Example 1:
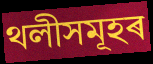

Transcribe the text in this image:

থলীসমূহৰ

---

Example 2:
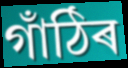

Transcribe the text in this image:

গাঁঠিৰ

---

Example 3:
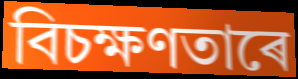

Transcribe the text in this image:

বিচক্ষণতাৰে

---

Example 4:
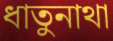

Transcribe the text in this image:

ধাতুনাথা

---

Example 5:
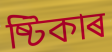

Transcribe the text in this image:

ষ্টিকাৰ